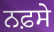
ਨਫ਼ਸੇ